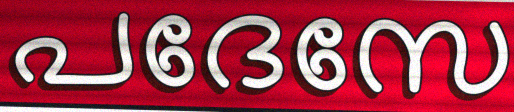
പദേസേ